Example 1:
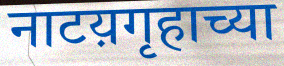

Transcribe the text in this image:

नाटय़गृहाच्या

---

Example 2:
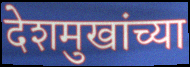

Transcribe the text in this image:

देशमुखांच्या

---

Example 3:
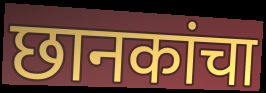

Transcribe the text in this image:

छानकांचा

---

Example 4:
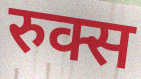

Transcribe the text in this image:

रुक्स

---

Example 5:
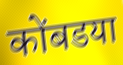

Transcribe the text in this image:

कोंबडया